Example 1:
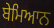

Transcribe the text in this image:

ਬੇਮਿਆਨ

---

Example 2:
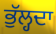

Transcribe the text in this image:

ਭੁੱਲ੍ਹਦਾ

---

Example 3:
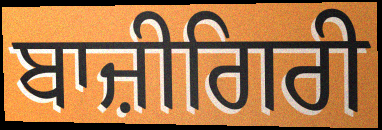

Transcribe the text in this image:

ਬਾਜ਼ੀਗਿਰੀ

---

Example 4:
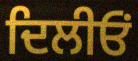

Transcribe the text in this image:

ਦਿਲੀਓਂ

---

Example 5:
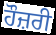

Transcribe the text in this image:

ਹੌਜ਼ਰੀ